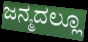
ಜನ್ಮದಲ್ಲೂ